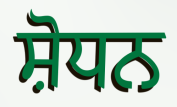
ਸ਼ੋਧਨ